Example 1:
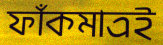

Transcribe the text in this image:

ফাঁকমাত্রই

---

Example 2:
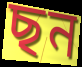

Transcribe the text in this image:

ছন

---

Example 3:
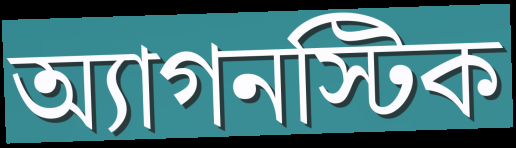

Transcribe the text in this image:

অ্যাগনস্টিক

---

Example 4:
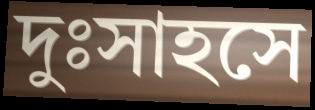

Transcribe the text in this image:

দুঃসাহসে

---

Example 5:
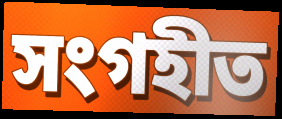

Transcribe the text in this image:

সংগহীত